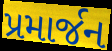
પ્રમાર્જન